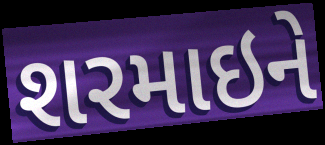
શરમાઇને